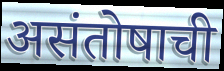
असंतोषाची